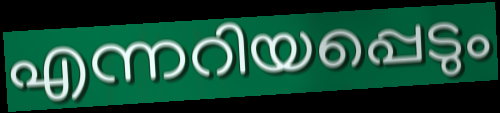
എന്നറിയപ്പെടും